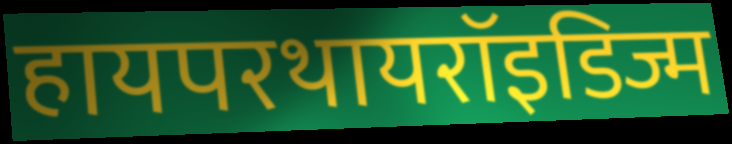
हायपरथायरॉइडिज्म